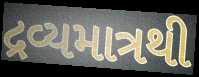
દ્રવ્યમાત્રથી